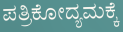
ಪತ್ರಿಕೋದ್ಯಮಕ್ಕೆ